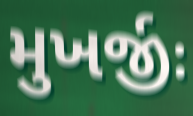
મુખર્જીઃ